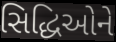
સિદ્ધિઓને